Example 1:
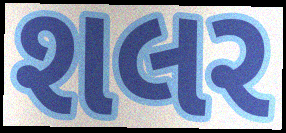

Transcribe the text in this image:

શલર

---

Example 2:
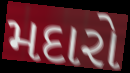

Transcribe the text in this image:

મદારો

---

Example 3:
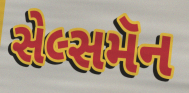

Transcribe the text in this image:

સેલ્સમૅન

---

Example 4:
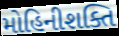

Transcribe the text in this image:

મોહિનીશક્તિ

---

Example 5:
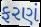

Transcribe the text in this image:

ફરણં